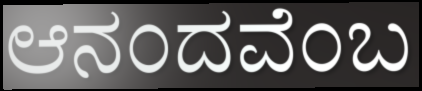
ಆನಂದವೆಂಬ